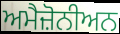
ਅਮੈਜ਼ੋਨੀਅਨ